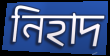
নিহাদ